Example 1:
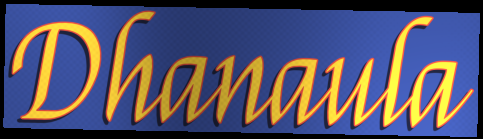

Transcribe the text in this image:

Dhanaula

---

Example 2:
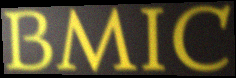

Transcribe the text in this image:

BMIC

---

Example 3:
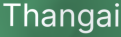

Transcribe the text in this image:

Thangai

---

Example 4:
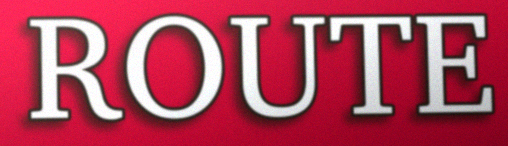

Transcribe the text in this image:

ROUTE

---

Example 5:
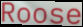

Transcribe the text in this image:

Roose